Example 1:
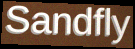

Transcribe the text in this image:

Sandfly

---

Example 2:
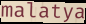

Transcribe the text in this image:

malatya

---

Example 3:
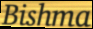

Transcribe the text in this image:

Bishma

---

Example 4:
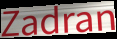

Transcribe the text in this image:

Zadran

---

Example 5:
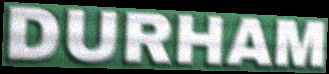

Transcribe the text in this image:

DURHAM